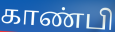
காண்பி